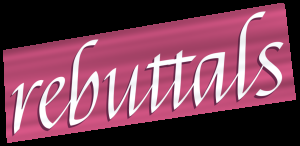
rebuttals